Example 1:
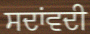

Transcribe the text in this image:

ਸਦਾਂਵਦੀ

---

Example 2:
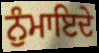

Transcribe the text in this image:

ਨੁੰਮਾਇਦੇ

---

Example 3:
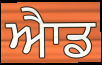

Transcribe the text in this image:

ਐਾਡ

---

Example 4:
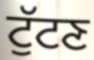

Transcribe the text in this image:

ਟੁੱਟਣ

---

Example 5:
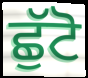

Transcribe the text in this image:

ਛੁੱਟੋ